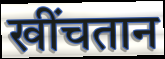
खींचतान